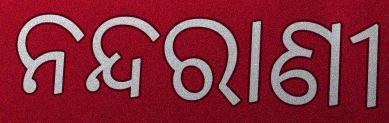
ନନ୍ଦରାଣୀ